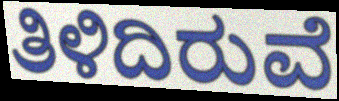
ತಿಳಿದಿರುವೆ